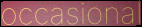
occasional